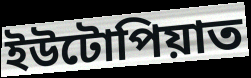
ইউটোপিয়াত